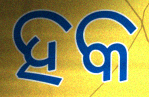
ହକ